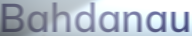
Bahdanau